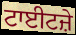
ਟਾਈਟਜ਼ੇ